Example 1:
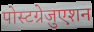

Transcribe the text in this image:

पोस्टग्रेजुएशन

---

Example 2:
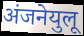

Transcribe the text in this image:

अंजनेयुलू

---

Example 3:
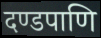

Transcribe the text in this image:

दण्डपाणि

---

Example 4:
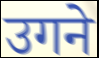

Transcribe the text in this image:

उगने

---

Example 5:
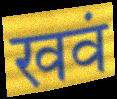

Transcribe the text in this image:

खवं